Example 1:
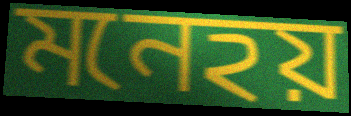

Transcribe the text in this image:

মনেহয়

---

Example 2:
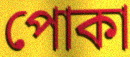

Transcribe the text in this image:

পোকা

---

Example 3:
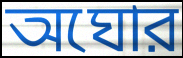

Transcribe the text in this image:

অঘোর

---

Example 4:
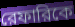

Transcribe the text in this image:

রেফারিকে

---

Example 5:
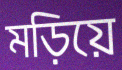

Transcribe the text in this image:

মড়িয়ে